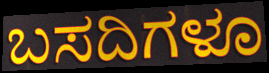
ಬಸದಿಗಳೂ